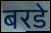
बरडे